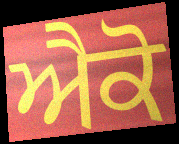
ਐਕੋ